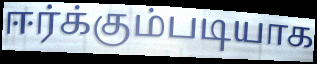
ஈர்க்கும்படியாக